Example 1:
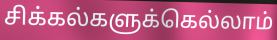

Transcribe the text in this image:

சிக்கல்களுக்கெல்லாம்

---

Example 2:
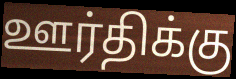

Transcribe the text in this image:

ஊர்திக்கு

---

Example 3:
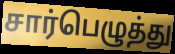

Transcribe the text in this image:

சார்பெழுத்து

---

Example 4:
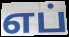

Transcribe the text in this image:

எப்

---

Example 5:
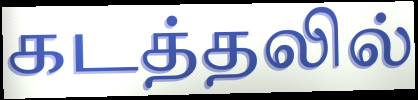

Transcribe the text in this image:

கடத்தலில்